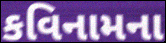
કવિનામના